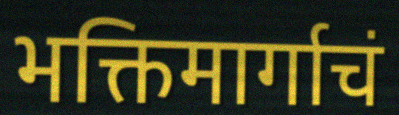
भक्तिमार्गाचं